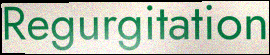
Regurgitation